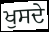
ਖੁਸਦੇ